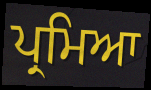
ਪ੍ਰਮਿਆ